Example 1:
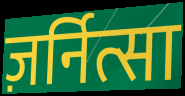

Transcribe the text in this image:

ज़र्नित्सा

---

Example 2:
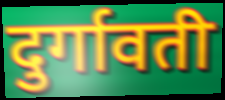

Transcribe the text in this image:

दुर्गावती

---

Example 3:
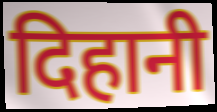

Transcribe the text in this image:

दिहानी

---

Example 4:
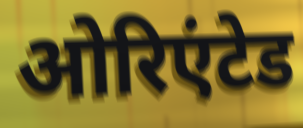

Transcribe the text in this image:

ओरिएंटेड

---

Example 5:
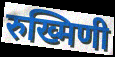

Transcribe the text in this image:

रुख्मिणी